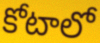
కోటాలో